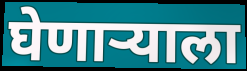
घेणार्‍याला